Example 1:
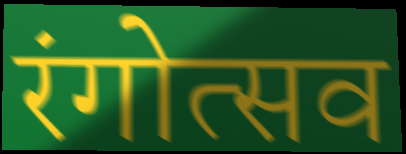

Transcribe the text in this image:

रंगोत्सव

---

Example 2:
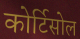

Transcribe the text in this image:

कोर्टिसोल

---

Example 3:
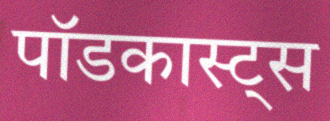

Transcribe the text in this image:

पॉडकास्ट्स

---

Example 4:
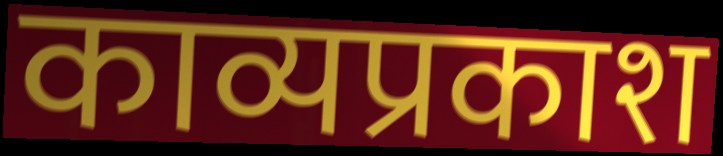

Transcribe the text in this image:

काव्यप्रकाश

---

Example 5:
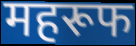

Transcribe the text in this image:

महरूफ